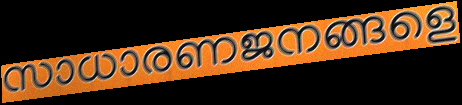
സാധാരണജനങ്ങളെ